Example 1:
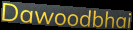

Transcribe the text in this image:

Dawoodbhai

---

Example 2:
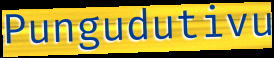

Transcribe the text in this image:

Pungudutivu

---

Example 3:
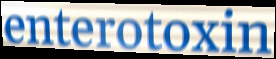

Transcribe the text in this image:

enterotoxin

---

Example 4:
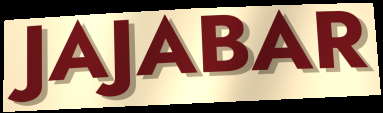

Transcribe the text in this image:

JAJABAR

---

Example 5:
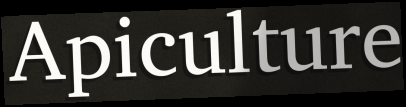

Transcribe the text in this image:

Apiculture